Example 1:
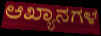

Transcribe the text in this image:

ಆಖ್ಯಾನಗಳ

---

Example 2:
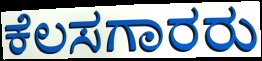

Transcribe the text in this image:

ಕೆಲಸಗಾರರು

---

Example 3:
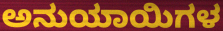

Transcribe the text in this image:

ಅನುಯಾಯಿಗಳ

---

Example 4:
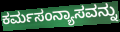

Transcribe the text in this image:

ಕರ್ಮಸಂನ್ಯಾಸವನ್ನು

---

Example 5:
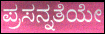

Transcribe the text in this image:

ಪ್ರಸನ್ನತೆಯೇ